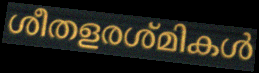
ശീതളരശ്മികൾ